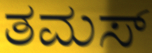
ತಮಸ್